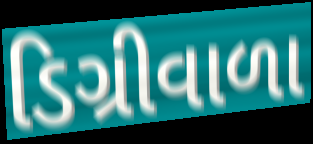
ડિગ્રીવાળા